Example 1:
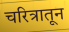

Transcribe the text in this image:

चरित्रातून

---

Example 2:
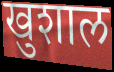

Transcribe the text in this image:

खुशाल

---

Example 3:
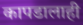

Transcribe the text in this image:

कापडालाही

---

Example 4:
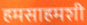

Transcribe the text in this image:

हमसाहमशी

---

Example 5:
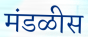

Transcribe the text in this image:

मंडळीस